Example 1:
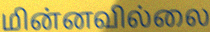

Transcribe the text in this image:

மின்னவில்லை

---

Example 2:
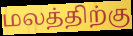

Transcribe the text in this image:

மலத்திற்கு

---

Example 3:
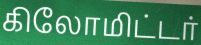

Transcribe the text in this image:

கிலோமிட்டர்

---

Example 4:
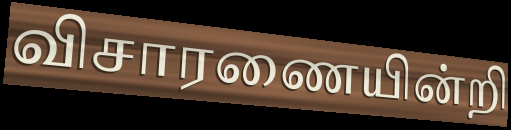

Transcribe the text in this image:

விசாரணையின்றி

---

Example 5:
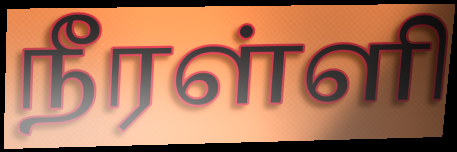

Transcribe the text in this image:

நீரள்ளி